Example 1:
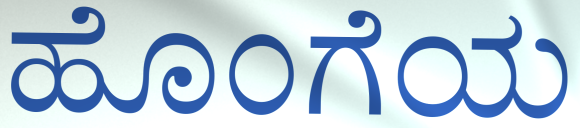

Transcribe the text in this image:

ಹೊಂಗೆಯ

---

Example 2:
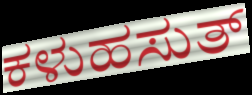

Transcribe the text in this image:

ಕಳುಹಸುತ್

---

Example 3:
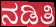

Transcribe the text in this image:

ನಡಿತಿ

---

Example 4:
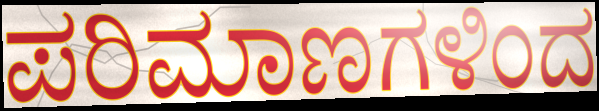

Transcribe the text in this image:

ಪರಿಮಾಣಗಳಿಂದ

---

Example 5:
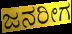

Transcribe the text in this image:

ಜನರೀಗ